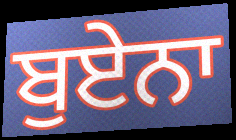
ਬੁਏਨਾ